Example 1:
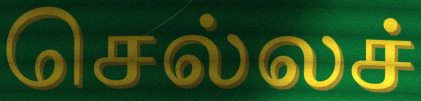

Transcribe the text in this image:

செல்லச்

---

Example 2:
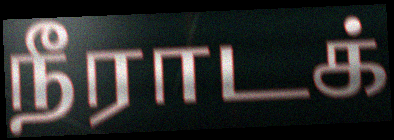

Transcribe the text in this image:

நீராடக்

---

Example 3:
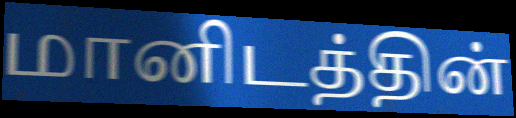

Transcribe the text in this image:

மானிடத்தின்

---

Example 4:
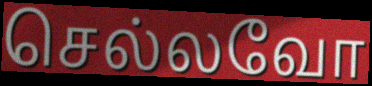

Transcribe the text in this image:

செல்லவோ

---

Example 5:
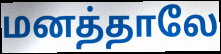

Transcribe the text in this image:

மனத்தாலே